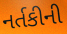
નર્તકીની